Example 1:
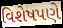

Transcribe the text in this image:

વિશેષપણે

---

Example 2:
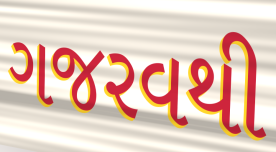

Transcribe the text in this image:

ગજરવથી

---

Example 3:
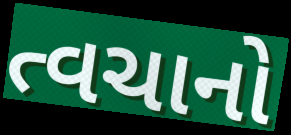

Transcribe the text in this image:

ત્વચાનો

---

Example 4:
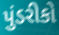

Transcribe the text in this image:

પુંડરીકો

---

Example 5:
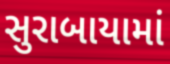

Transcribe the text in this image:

સુરાબાયામાં